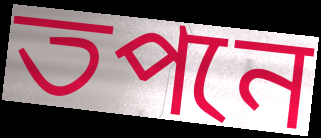
তপনে